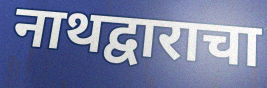
नाथद्वाराचा